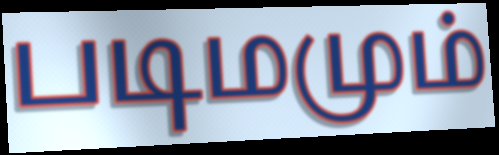
படிமமும்